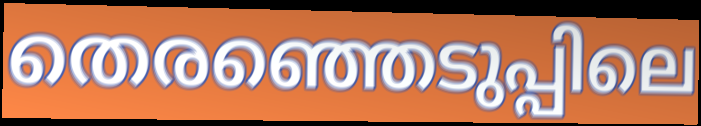
തെരഞ്ഞെടുപ്പിലെ